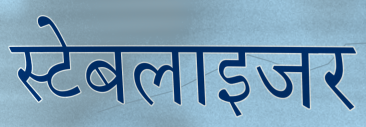
स्टेबलाइजर